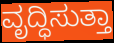
ವೃದ್ಧಿಸುತ್ತಾ